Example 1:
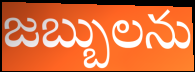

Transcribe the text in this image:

జబ్బులను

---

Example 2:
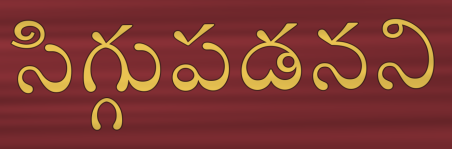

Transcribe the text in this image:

సిగ్గుపడనని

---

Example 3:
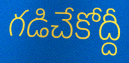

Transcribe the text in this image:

గడిచేకోద్దీ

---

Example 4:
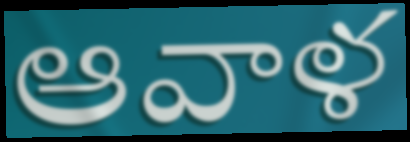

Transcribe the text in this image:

ఆవాళ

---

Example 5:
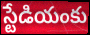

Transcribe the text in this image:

స్టేడియంకు